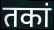
तकां